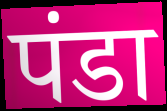
पंडा